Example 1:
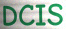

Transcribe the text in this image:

DCIS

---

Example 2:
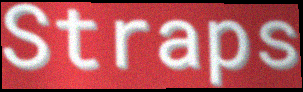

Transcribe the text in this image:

Straps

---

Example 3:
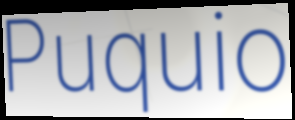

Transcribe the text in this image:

Puquio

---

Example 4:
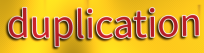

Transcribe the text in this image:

duplication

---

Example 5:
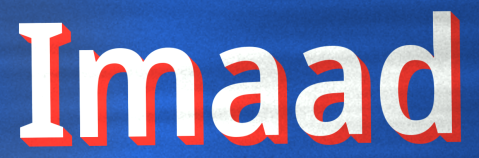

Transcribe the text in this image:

Imaad